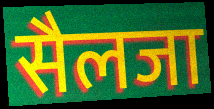
सैलजा